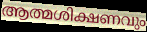
ആത്മശിക്ഷണവും